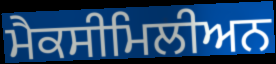
ਮੈਕਸੀਮਿਲੀਅਨ